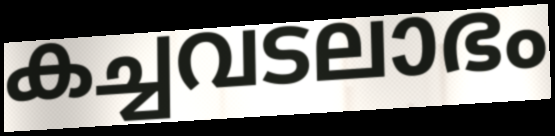
കച്ചവടലാഭം